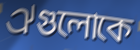
ঐগুলোকে